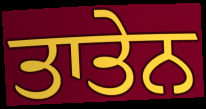
ਤਾਤੇਨ